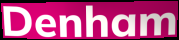
Denham